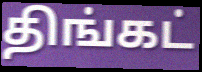
திங்கட்